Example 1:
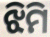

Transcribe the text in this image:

ଝିମି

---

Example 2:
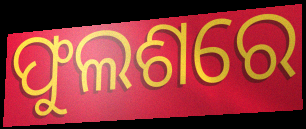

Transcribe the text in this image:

ଫୁଲଶରେ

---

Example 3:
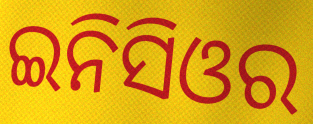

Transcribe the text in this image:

ଇନିସିଓର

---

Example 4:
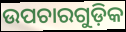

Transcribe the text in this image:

ଉପଚାରଗୁଡ଼ିକ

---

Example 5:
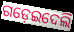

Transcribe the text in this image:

ଗଡ଼େଇଦେଲି